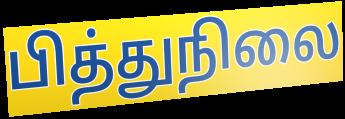
பித்துநிலை